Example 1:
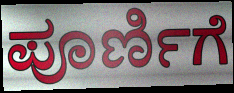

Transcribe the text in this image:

ಪೂರ್ಣಿಗೆ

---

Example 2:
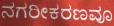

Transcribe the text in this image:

ನಗರೀಕರಣವೂ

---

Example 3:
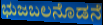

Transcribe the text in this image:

ಭುಜಬಲನೊಡನೆ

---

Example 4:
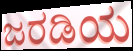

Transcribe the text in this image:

ಜರಡಿಯ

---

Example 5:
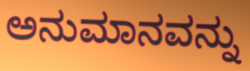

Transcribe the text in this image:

ಅನುಮಾನವನ್ನು